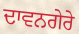
ਦਾਵਨਗੇਰੇ